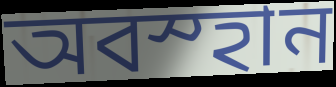
অবস্হান